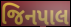
જિનપાલ